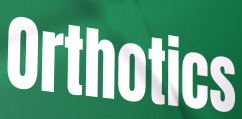
Orthotics